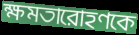
ক্ষমতারোহণকে